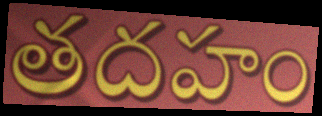
తదహం